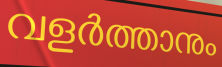
വളർത്താനും